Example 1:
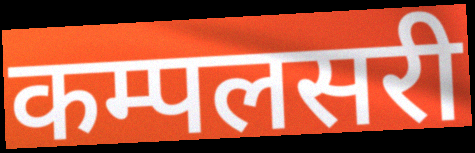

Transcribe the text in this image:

कम्पलसरी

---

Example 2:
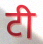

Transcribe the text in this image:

टी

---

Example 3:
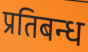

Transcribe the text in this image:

प्रतिबन्ध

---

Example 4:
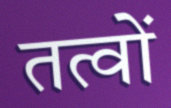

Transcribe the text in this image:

तत्वों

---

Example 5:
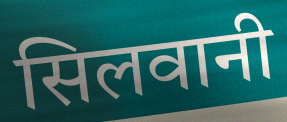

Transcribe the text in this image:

सिलवानी